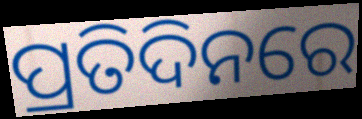
ପ୍ରତିଦିନରେ